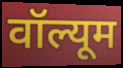
वॉल्यूम